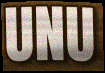
UNU